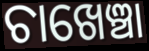
ଚାଖେଞ୍ଚା